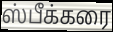
ஸ்பீக்கரை